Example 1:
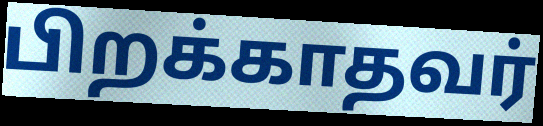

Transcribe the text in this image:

பிறக்காதவர்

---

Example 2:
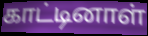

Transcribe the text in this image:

காட்டினாள்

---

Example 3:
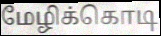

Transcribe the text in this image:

மேழிக்கொடி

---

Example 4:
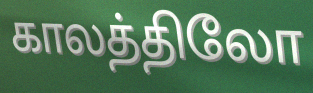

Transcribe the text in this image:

காலத்திலோ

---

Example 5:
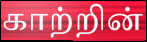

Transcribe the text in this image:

காற்றின்